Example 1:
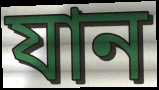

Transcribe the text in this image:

যান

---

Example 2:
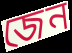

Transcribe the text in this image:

জেন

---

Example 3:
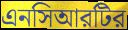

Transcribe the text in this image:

এনসিআরটির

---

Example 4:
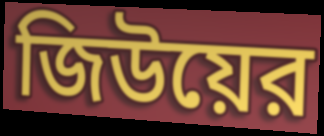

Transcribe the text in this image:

জিউয়ের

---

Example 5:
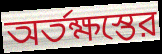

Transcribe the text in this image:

অর্তক্ষস্তের